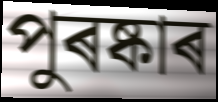
পুৰষ্কাৰ